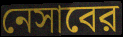
নেসাবের